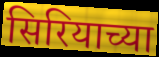
सिरियाच्या